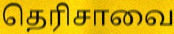
தெரிசாவை